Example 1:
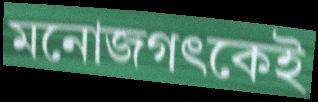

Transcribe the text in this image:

মনোজগৎকেই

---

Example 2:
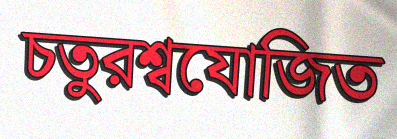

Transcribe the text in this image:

চতুরশ্বযোজিত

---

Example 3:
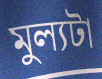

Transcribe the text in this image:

মুল্যটা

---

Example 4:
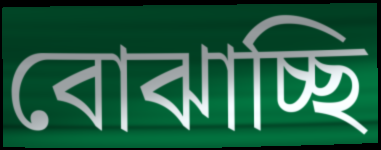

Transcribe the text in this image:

বোঝাচ্ছি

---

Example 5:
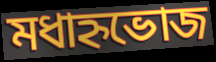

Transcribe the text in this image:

মধাহ্নভোজ